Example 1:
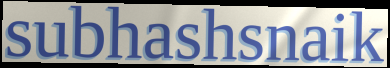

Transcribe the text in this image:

subhashsnaik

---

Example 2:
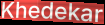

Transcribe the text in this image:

Khedekar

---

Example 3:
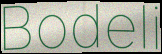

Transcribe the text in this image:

Bodeli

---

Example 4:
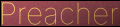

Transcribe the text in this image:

Preacher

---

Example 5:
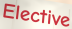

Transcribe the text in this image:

Elective